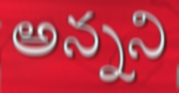
అన్నని